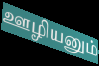
ஊழியனும்